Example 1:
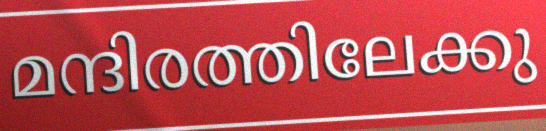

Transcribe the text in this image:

മന്ദിരത്തിലേക്കു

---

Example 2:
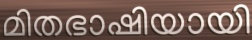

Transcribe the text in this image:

മിതഭാഷിയായി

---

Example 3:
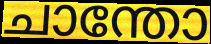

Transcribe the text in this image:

ചാന്തോ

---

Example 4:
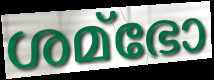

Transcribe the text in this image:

ശമ്ഭോ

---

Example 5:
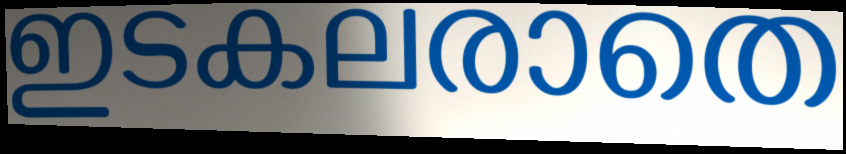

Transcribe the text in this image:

ഇടകലരാതെ